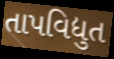
તાપવિદ્યુત